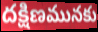
దక్షిణమునకు